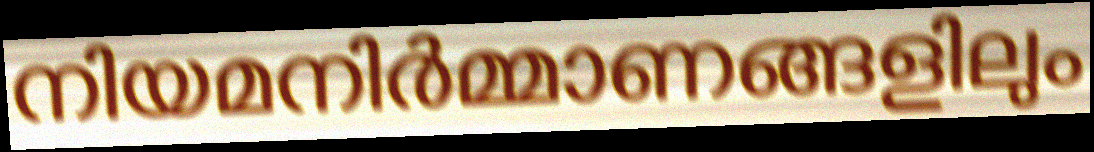
നിയമനിർമ്മാണങ്ങളിലും